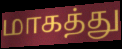
மாகத்து